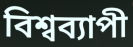
বিশ্বব্যাপী